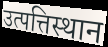
उत्पत्तिस्थान